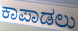
ಕಾಪಾಡಲು